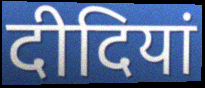
दीदियां